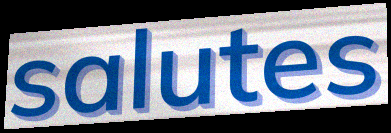
salutes